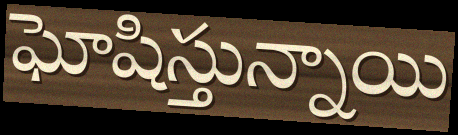
ఘోషిస్తున్నాయి